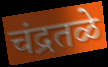
चंद्रतळे